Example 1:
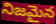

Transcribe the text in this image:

నిజమైన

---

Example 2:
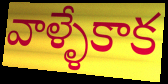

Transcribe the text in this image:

వాళ్ళేకాక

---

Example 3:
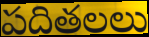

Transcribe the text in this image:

పదితలలు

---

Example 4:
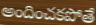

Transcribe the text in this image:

అందించకపోతే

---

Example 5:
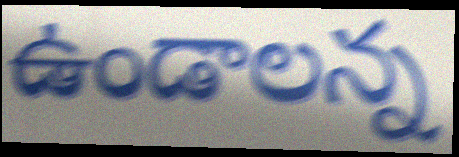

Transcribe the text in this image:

ఉండాలన్న